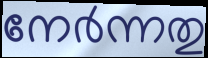
നേർന്നതു